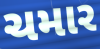
ચમાર